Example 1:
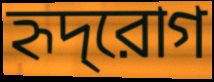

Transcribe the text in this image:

হৃদ্‌রোগ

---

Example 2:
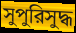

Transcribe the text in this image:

সুপুরিসুদ্ধ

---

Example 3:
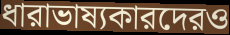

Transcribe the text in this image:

ধারাভাষ্যকারদেরও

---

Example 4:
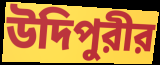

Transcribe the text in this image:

উদিপুরীর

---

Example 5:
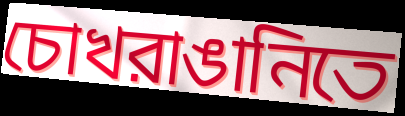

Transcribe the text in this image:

চোখরাঙানিতে